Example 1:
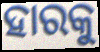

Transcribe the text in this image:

ହାରକୁ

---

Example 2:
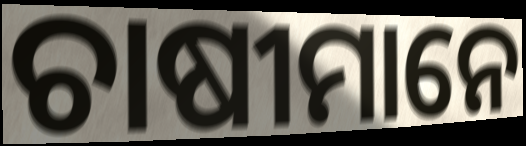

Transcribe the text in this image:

ଚାଷୀମାନେ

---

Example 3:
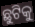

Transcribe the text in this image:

ଛୁଟିକୁ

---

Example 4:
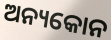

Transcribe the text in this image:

ଅନ୍ୟକୋନ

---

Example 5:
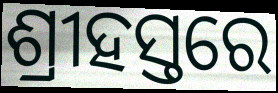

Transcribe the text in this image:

ଶ୍ରୀହସ୍ତରେ